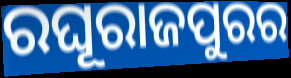
ରଘୂରାଜପୁରର